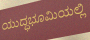
ಯುದ್ಧಭೂಮಿಯಲ್ಲಿ